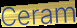
Ceram